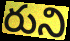
రుని